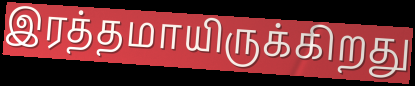
இரத்தமாயிருக்கிறது